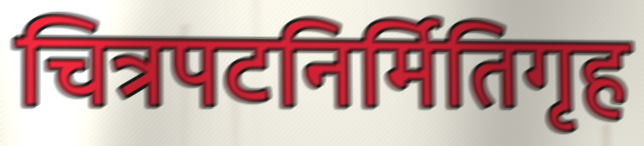
चित्रपटनिर्मितिगृह